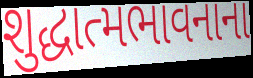
શુદ્ધાત્મભાવનાના